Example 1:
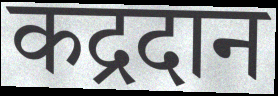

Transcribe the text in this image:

कद्रदान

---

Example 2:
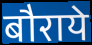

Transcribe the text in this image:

बौराये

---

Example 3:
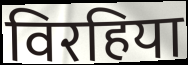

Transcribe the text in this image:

विरहिया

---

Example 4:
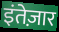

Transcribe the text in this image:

इंतेज़ार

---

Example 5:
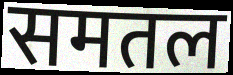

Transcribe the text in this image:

समतल